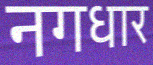
नगधार